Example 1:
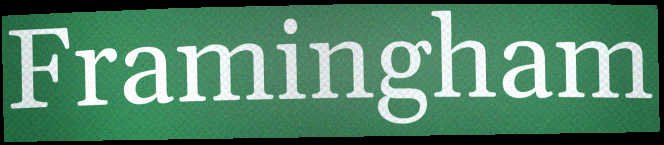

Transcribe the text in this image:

Framingham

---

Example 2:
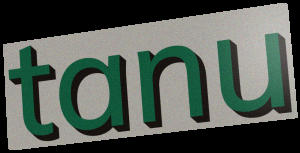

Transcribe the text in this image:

tanu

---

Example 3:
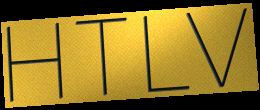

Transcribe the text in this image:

HTLV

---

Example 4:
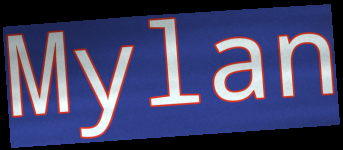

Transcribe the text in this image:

Mylan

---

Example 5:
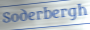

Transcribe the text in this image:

Soderbergh